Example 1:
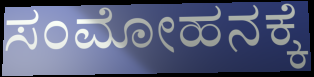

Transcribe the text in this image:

ಸಂಮೋಹನಕ್ಕೆ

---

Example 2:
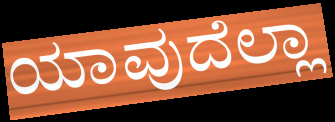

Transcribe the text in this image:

ಯಾವುದೆಲ್ಲಾ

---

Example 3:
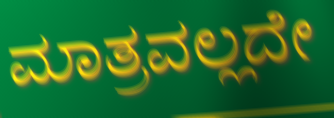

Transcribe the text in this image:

ಮಾತ್ರವಲ್ಲದೇ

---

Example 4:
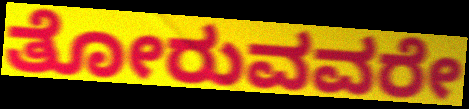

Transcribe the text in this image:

ತೋರುವವರೇ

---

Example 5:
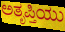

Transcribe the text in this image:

ಅತೃಪ್ತಿಯು